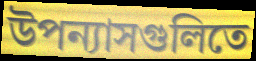
উপন্যাসগুলিতে